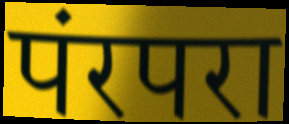
पंरपरा